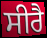
ਸੀਰੈ